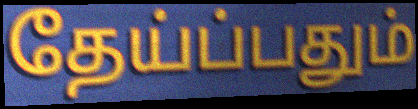
தேய்ப்பதும்